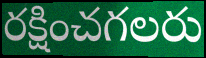
రక్షించగలరు